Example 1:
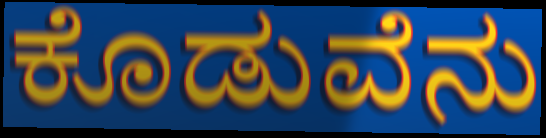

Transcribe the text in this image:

ಕೊಡುವೆನು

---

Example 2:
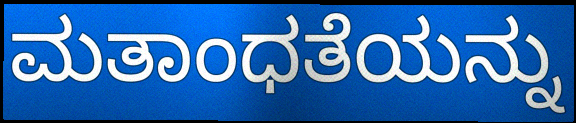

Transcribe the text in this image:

ಮತಾಂಧತೆಯನ್ನು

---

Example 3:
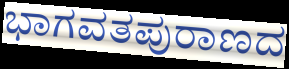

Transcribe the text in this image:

ಭಾಗವತಪುರಾಣದ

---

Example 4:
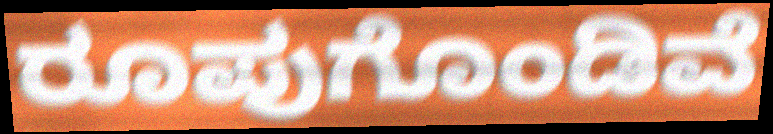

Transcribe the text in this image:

ರೂಪುಗೊಂಡಿವೆ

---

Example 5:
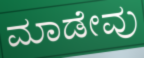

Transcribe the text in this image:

ಮಾಡೇವು